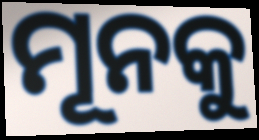
ମୂନକୁ